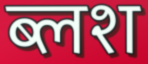
ब्लश